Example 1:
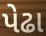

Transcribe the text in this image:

પેઢા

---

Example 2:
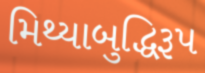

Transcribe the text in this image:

મિથ્યાબુદ્ધિરૂપ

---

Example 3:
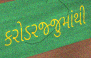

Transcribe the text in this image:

કરોડરજ્જુમાંથી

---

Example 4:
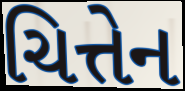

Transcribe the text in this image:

ચિત્તેન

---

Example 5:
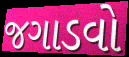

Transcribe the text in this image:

જગાડવો